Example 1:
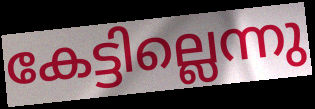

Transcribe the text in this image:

കേട്ടില്ലെന്നു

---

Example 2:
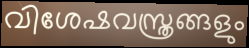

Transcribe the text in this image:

വിശേഷവസ്ത്രങ്ങളും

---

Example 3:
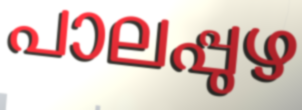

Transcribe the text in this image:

പാലപ്പുഴ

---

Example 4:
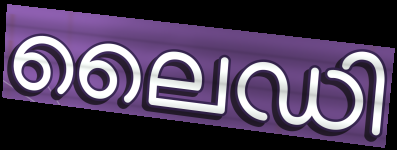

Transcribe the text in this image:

ലൈഡി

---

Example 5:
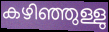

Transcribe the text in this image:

കഴിഞ്ഞുള്ളു